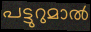
പട്ടുറുമാൽ